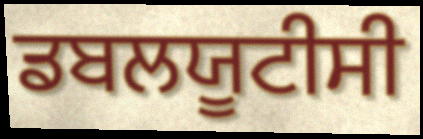
ਡਬਲਯੂਟੀਸੀ